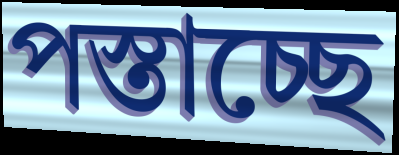
পস্তাচ্ছে